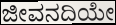
ಜೀವನದಿಯೇ